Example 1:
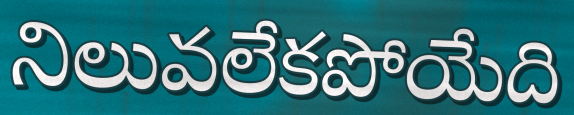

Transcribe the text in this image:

నిలువలేకపోయేది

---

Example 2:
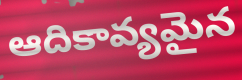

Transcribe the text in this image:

ఆదికావ్యమైన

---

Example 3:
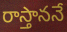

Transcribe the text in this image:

రాస్తాననే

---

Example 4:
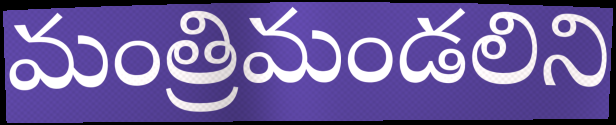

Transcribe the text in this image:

మంత్రిమండలిని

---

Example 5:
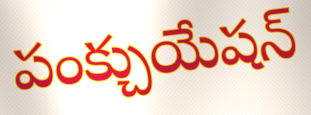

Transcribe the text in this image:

పంక్చుయేషన్